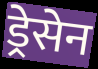
ड्रेसेन